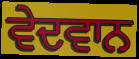
ਵੇਦਵਾਨ